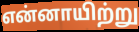
என்னாயிற்று